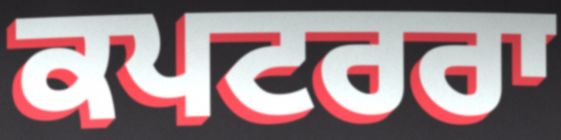
ਕਪਟਰਰਾ